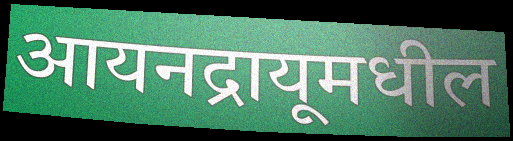
आयनद्रायूमधील